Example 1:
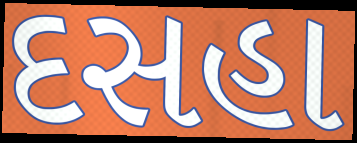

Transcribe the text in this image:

દસહા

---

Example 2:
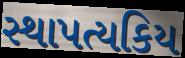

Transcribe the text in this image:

સ્થાપત્યકિય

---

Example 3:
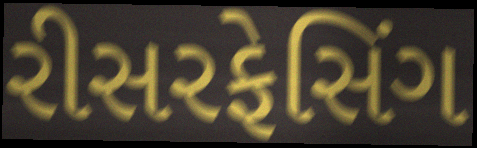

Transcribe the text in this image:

રીસરફેસિંગ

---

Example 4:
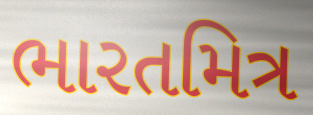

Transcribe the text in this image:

ભારતમિત્ર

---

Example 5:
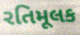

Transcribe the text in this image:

રતિમૂલક